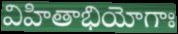
విహితాభియోగాః